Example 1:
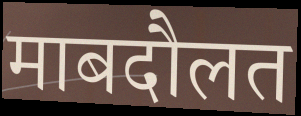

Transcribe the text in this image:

माबदौलत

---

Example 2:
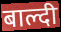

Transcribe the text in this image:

बाल्दी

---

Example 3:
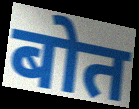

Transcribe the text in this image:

बोत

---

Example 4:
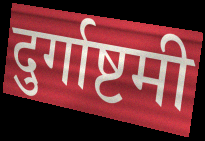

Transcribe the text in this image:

दुर्गाष्टमी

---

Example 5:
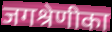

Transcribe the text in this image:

जगश्रेणीका